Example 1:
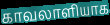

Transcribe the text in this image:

காவலாளியாக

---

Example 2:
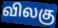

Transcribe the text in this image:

விலகு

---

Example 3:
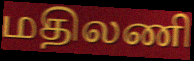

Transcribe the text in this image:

மதிலணி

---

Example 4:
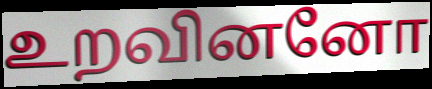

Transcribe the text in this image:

உறவினனோ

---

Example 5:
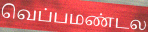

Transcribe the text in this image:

வெப்பமண்டல